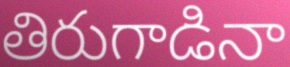
తిరుగాడినా